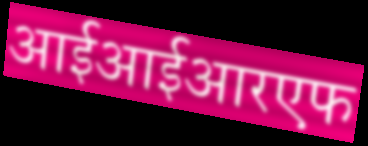
आईआईआरएफ